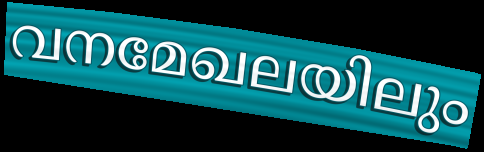
വനമേഖലയിലും